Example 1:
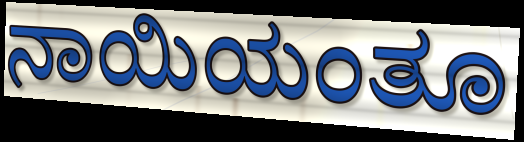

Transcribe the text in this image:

ನಾಯಿಯಂತೂ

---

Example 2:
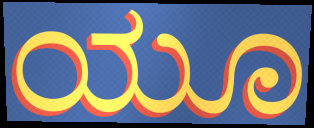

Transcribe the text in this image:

ಯೂ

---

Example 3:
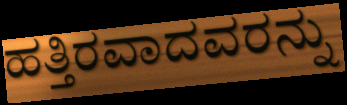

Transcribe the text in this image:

ಹತ್ತಿರವಾದವರನ್ನು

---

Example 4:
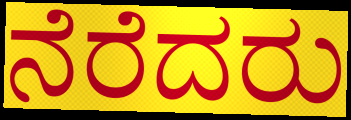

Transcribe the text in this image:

ನೆರೆದರು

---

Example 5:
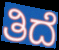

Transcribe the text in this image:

ತಿದೆ